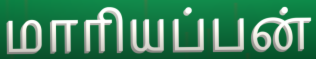
மாரியப்பன்